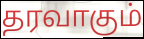
தரவாகும்